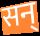
सन्